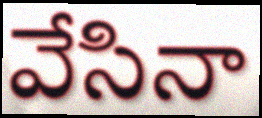
వేసినా